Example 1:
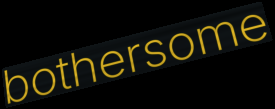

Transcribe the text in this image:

bothersome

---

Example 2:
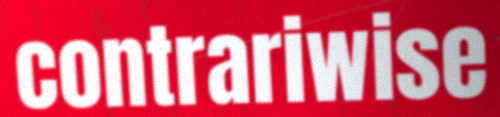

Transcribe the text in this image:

contrariwise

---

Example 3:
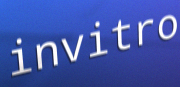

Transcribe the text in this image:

invitro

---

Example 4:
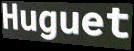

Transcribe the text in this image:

Huguet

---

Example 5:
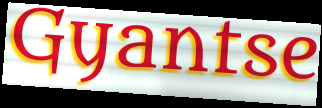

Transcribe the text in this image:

Gyantse